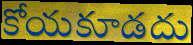
కోయకూడదు